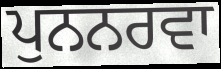
ਪੁਨਨਰਵਾ